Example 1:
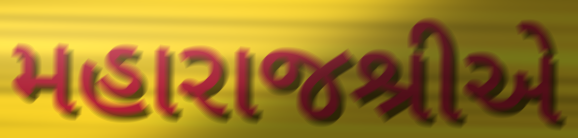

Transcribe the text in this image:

મહારાજશ્રીએ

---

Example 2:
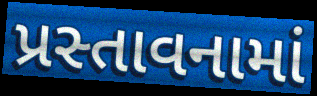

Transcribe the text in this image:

પ્રસ્તાવનામાં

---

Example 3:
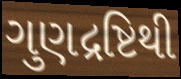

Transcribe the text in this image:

ગુણદ્રષ્ટિથી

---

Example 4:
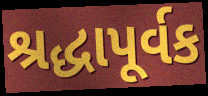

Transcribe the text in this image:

શ્રદ્ધાપૂર્વક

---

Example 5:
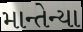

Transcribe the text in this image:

માન્તેન્યા